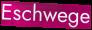
Eschwege